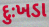
દુઃખડા